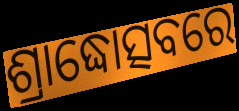
ଶ୍ରାଦ୍ଧୋତ୍ସବରେ